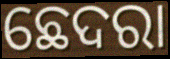
ଛେଦରା